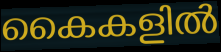
കൈകളിൽ